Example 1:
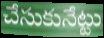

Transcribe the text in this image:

చేసుకునేట్టు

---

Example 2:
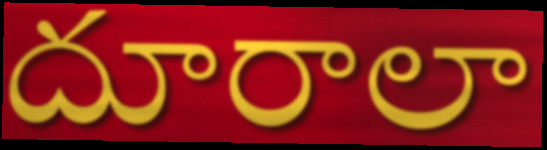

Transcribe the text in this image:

దూరాలా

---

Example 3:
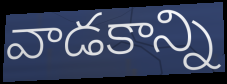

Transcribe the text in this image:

వాడకాన్ని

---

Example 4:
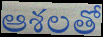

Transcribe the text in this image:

ఆశలతో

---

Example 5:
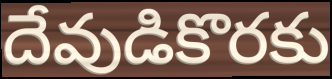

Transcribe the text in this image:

దేవుడికొరకు